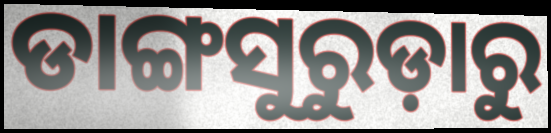
ଡାଙ୍ଗସୁରୁଡ଼ାରୁ